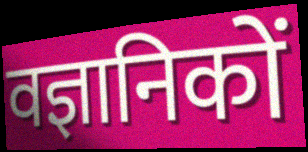
वज्ञानिकों